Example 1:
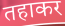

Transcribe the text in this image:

तहाकर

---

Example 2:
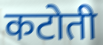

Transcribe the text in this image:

कटोती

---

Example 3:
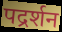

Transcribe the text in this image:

पद्रर्शन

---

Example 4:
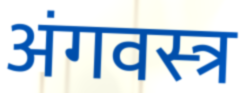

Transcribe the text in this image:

अंगवस्त्र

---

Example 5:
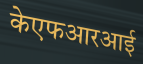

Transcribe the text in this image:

केएफआरआई